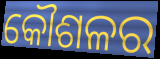
କୌଶଳର